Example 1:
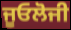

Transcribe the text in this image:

ਜੂਓਲੋਜੀ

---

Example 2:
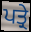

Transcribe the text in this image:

ਪਤ੍ਰੇ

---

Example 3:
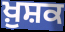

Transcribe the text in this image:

ਖ਼ੁਸ਼ਕ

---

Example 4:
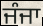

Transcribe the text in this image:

ਜੰਜਾ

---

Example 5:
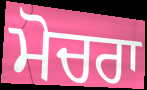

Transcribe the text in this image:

ਮੋਚਰਾ